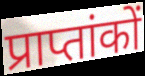
प्राप्तांकों